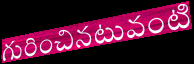
గురించినటువంటి